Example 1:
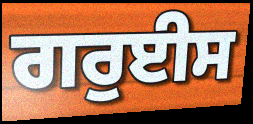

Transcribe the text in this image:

ਗਰੁਈਸ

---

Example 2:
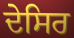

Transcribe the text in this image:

ਦੇਸਿਰ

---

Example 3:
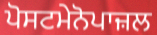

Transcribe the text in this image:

ਪੋਸਟਮੇਨੋਪਾਜ਼ਲ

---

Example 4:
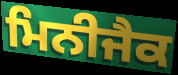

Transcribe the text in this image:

ਮਿਨੀਜੈਕ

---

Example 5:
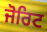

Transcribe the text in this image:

ਜੋਰਿਟ